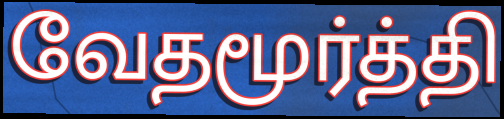
வேதமூர்த்தி